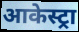
आकेस्ट्रा